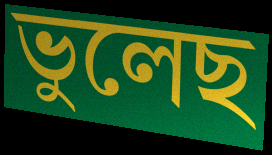
ভুলেছ